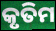
କୃତିମ